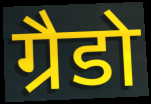
ग्रैडो